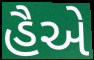
હૈએ